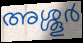
അശ്ശൂർ